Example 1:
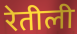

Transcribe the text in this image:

रेतीली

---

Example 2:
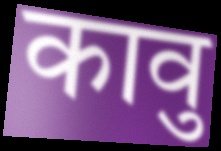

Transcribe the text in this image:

कावु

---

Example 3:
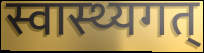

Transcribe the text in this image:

स्वास्थ्यगत्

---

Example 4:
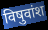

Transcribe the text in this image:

विषुवांश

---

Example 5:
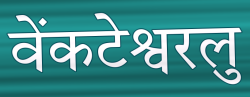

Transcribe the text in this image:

वेंकटेश्वरलु